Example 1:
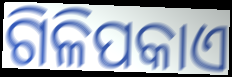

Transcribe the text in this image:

ଗିଳିପକାଏ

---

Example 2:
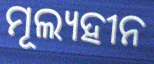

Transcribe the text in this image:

ମୂଲ୍ୟହୀନ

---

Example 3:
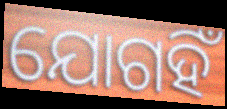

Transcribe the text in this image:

ଯୋଗହିଁ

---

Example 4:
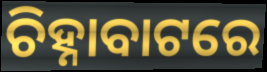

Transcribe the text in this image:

ଚିହ୍ନାବାଟରେ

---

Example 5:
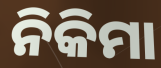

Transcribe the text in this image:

ନିକିମା